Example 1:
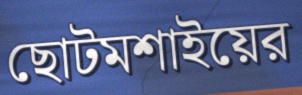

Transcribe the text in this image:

ছোটমশাইয়ের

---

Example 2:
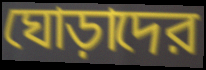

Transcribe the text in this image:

ঘোড়াদের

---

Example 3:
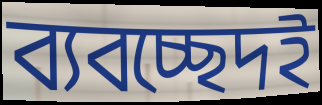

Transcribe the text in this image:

ব্যবচ্ছেদই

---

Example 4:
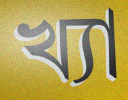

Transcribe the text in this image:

খ্যা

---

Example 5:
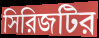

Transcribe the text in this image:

সিরিজটির